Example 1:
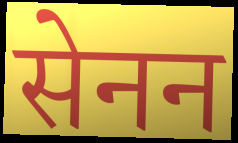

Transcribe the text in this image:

सेनन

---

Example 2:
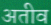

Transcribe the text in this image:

अतीव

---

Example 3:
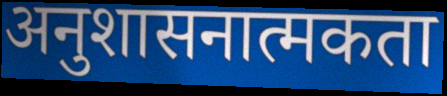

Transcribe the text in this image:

अनुशासनात्मकता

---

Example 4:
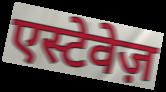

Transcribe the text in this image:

एस्टेवेज़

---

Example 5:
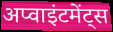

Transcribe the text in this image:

अप्वाइंटमेंट्स